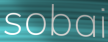
sobai